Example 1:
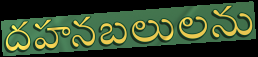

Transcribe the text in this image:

దహనబలులను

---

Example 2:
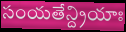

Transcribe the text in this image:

సంయతేన్ద్రియాః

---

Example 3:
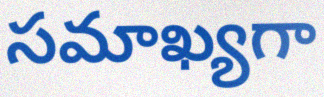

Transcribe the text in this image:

సమాఖ్యగా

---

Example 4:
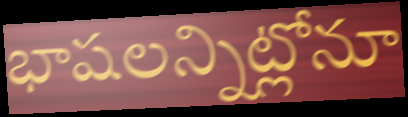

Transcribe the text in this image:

భాషలన్నిట్లోనూ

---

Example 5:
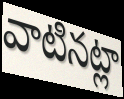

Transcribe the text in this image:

వాటినట్లా